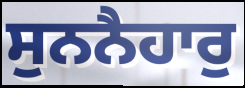
ਸੁਨਨੈਹਾਰੁ